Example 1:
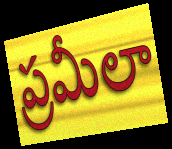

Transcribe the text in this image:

ప్రమీలా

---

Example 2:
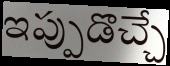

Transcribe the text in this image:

ఇప్పుడొచ్చే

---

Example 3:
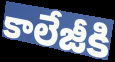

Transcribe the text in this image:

కాలేజీకి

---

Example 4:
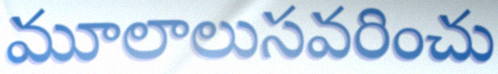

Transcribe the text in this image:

మూలాలుసవరించు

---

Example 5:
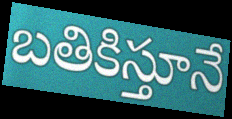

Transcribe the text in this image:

బతికిస్తూనే